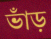
ভাঁড়